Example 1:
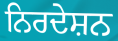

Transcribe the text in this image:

ਨਿਰਦੇਸ਼ਨ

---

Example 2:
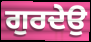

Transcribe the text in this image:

ਗੁਰਦੇਉ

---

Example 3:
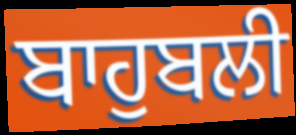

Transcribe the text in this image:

ਬਾਹੁਬਲੀ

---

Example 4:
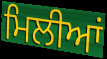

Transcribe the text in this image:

ਮਿਲੀਆਂ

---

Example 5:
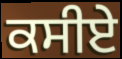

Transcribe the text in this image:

ਕਸੀਏ